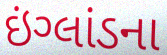
ઇંગ્લાંડના